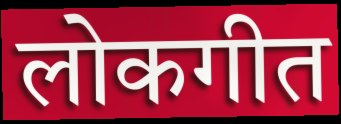
लोकगीत